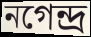
নগেন্দ্র